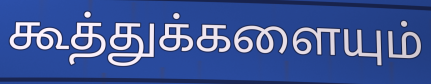
கூத்துக்களையும்